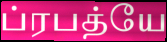
ப்ரபத்யே